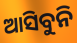
ଆସିବୁନି